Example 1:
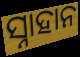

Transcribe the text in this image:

ସ୍ନାହାନ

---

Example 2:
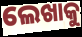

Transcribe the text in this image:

ଲେଖାକୁ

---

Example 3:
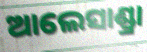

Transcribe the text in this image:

ଆଲେସାଣ୍ଡ୍ରା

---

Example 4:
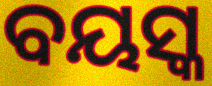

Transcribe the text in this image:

ବୟସ୍କ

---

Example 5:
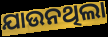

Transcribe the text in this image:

ଯାଉନଥିଲା